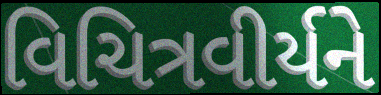
વિચિત્રવીર્યને